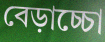
বেড়াচ্চো